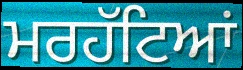
ਮਰਹੱਟਿਆਂ